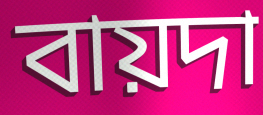
বায়দা